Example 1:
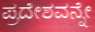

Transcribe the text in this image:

ಪ್ರದೇಶವನ್ನೇ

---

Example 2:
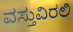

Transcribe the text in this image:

ವಸ್ತುವಿರಲಿ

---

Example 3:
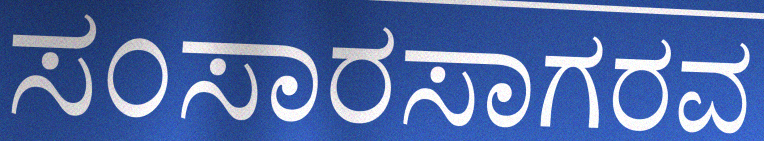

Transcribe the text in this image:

ಸಂಸಾರಸಾಗರವ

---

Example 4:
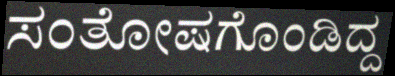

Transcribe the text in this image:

ಸಂತೋಷಗೊಂಡಿದ್ದ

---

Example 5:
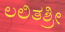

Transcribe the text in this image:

ಲಲಿತಶ್ರೀ